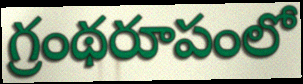
గ్రంథరూపంలో